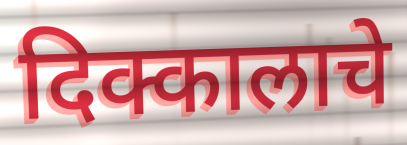
दिक्कालाचे